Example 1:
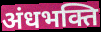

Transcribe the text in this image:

अंधभक्ति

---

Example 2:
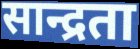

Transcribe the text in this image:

सान्द्रता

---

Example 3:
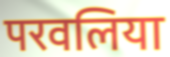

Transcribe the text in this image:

परवलिया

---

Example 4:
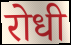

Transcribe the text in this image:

रोधी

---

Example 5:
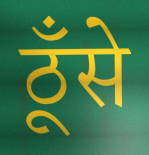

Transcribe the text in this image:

ठूँसे